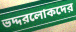
ভদ্দরলোকদের